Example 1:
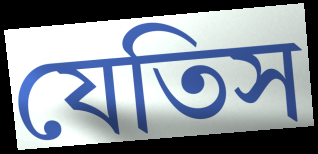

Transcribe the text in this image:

যেতিস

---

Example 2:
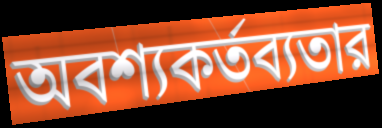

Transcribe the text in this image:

অবশ্যকর্তব্যতার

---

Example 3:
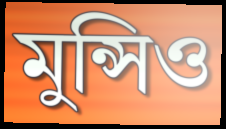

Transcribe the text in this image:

মুন্সিও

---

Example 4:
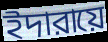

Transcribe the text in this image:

ইদারায়ে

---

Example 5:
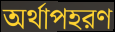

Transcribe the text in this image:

অর্থাপহরণ